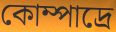
কোম্পাদ্রে